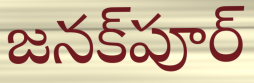
జనక్‌పూర్